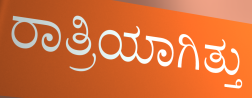
ರಾತ್ರಿಯಾಗಿತ್ತು